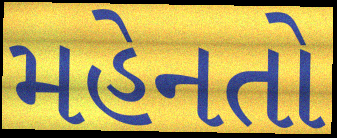
મહેનતો